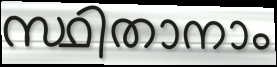
സ്ഥിതാനാം